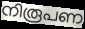
നിരൂപണ